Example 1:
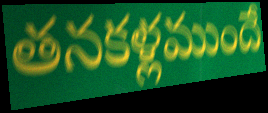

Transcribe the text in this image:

తనకళ్లముందే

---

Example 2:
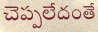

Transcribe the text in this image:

చెప్పలేదంతే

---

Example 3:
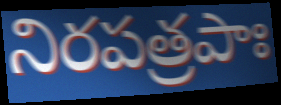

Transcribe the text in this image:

నిరపత్రపాః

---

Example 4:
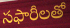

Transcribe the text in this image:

సఫారీలతో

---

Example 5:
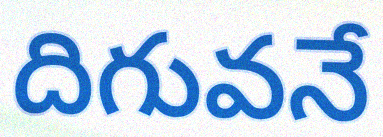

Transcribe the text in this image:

దిగువనే